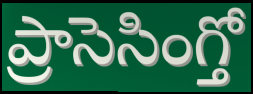
ప్రాసెసింగ్తో